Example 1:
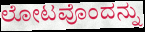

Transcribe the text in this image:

ಲೋಟವೊಂದನ್ನು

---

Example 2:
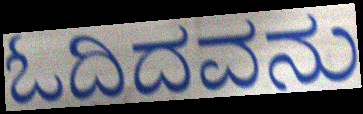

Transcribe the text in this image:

ಓದಿದವನು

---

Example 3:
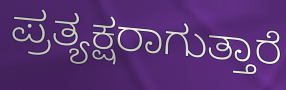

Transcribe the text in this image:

ಪ್ರತ್ಯಕ್ಷರಾಗುತ್ತಾರೆ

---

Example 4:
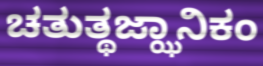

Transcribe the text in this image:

ಚತುತ್ಥಜ್ಝಾನಿಕಂ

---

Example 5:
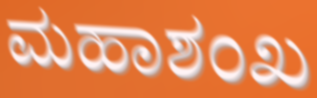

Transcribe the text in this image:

ಮಹಾಶಂಖ